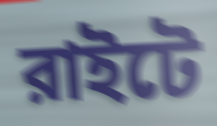
রাইটে